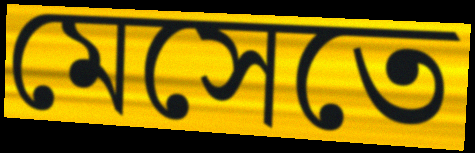
মেসেতে